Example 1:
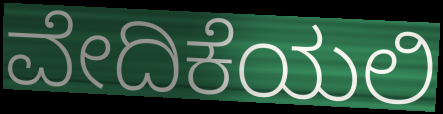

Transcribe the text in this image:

ವೇದಿಕೆಯಲಿ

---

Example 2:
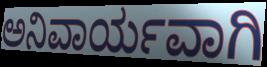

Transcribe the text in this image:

ಅನಿವಾರ್ಯವಾಗಿ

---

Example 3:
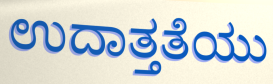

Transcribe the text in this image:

ಉದಾತ್ತತೆಯು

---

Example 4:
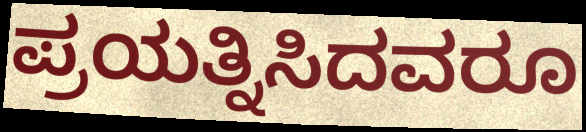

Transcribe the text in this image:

ಪ್ರಯತ್ನಿಸಿದವರೂ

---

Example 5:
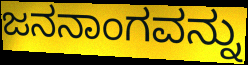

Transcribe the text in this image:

ಜನನಾಂಗವನ್ನು